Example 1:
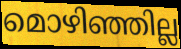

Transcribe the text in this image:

മൊഴിഞ്ഞില്ല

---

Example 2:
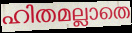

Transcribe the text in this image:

ഹിതമല്ലാതെ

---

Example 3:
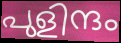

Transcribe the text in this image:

പുളിന്ദം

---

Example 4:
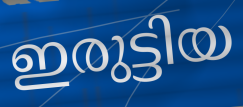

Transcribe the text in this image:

ഇരുട്ടിയ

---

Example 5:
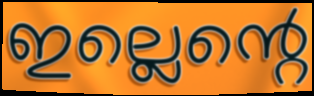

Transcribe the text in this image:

ഇല്ലെന്റെ